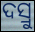
ଦସ୍ରୁ